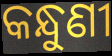
କନ୍ଧୁଣୀ